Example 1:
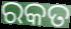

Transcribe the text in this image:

ରକତ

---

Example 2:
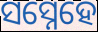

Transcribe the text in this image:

ସସ୍ନେହେ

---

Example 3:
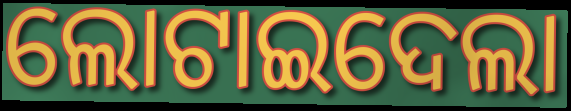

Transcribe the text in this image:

ଲୋଟାଇଦେଲା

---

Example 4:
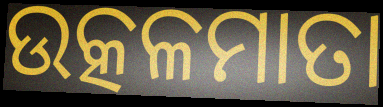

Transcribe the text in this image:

ଉତ୍କଳମାତା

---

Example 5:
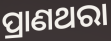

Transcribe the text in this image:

ପ୍ରାଣଥରା